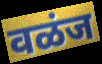
वळंज